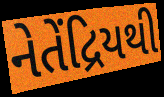
નેતેંદ્રિયથી